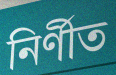
নির্ণীত